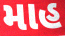
માહ